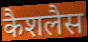
कैशलैस